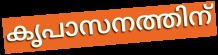
കൃപാസനത്തിന്